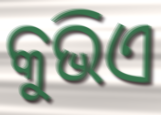
କୁଭିଏ